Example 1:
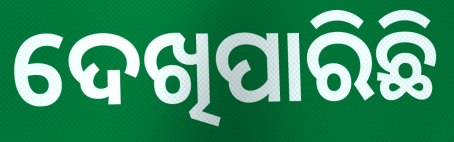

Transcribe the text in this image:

ଦେଖିପାରିଛି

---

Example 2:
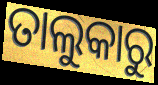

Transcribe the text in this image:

ତାଲୁକାରୁ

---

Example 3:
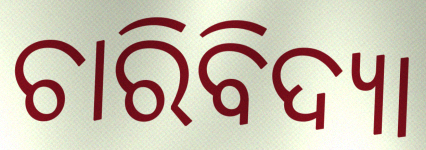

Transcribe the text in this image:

ଚାରିବିଦ୍ୟା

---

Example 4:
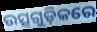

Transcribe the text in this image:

ଉତ୍ସଗୁଡ଼ିକରେ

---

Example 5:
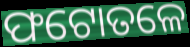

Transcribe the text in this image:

ଫଟୋତଳେ